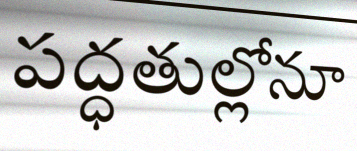
పద్ధతుల్లోనూ